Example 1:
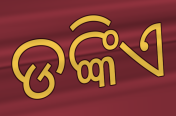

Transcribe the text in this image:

ଡଙ୍କିଏ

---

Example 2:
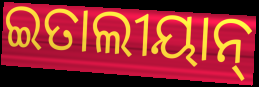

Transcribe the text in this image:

ଇତାଲୀୟାନ୍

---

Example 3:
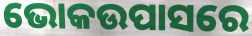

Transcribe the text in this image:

ଭୋକଉପାସରେ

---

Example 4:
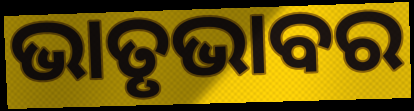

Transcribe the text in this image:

ଭାତୃଭାବର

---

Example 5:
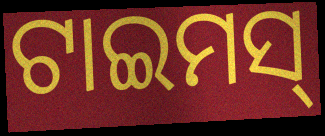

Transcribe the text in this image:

ଟାଇମସ୍